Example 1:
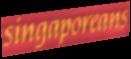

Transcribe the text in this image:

singaporeans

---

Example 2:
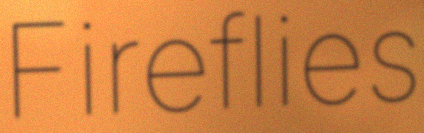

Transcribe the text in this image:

Fireflies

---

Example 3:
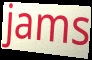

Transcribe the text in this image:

jams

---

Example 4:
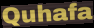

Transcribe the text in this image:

Quhafa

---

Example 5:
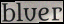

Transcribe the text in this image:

bluer